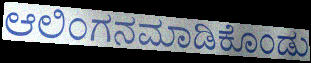
ಆಲಿಂಗನಮಾಡಿಕೊಂಡು